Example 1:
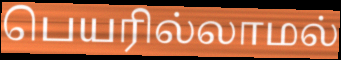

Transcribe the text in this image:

பெயரில்லாமல்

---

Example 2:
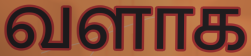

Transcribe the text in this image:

வளாக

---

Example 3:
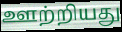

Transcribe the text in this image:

ஊற்றியது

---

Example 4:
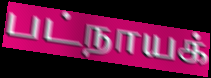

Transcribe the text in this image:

பட்நாயக்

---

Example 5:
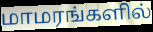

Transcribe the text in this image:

மாமரங்களில்